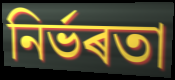
নিৰ্ভৰতা